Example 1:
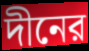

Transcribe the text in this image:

দীনের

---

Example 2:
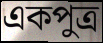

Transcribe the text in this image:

একপুত্র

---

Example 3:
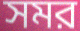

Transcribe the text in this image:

সমর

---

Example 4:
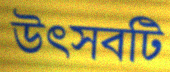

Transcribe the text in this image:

উৎসবটি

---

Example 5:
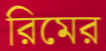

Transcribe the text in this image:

রিমের